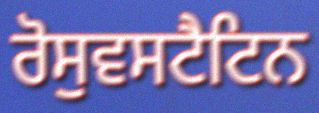
ਰੋਸੁਵਸਟੈਟਿਨ